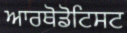
ਆਰਥੋਡੋਟਿਸਟ